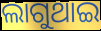
ଲାଗୁଥାଇ